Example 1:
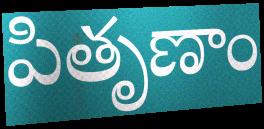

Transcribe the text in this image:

పితృణాం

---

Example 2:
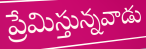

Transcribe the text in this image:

ప్రేమిస్తున్నవాడు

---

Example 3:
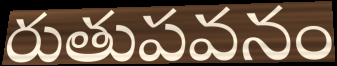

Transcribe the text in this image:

రుతుపవనం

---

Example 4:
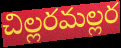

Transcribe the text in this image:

చిల్లరమల్లర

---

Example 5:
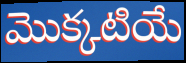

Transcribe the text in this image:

మొక్కటియే